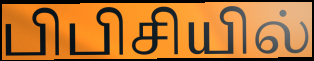
பிபிசியில்